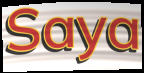
Saya